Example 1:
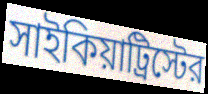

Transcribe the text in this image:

সাইকিয়াট্রিস্টের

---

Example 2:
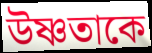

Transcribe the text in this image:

উষ্ণতাকে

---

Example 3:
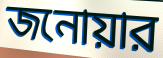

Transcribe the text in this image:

জনোয়ার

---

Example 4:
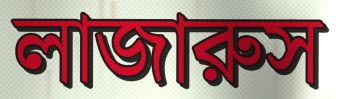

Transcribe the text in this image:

লাজারুস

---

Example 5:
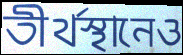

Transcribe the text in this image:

তীর্থস্থানেও